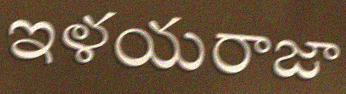
ఇళయరాజా